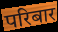
परिबार